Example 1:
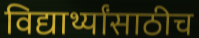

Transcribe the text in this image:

विद्यार्थ्यांसाठीच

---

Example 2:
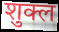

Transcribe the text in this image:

शुक्‍ल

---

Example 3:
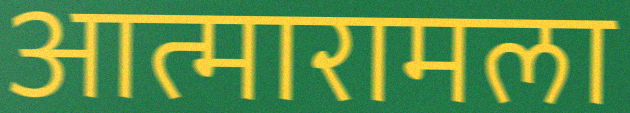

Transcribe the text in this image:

आत्मारामला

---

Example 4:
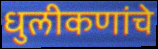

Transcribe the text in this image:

धुलीकणांचे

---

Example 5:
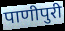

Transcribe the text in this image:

पाणीपुरी